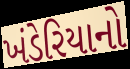
ખંડેરિયાનો